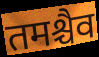
तमश्चैव